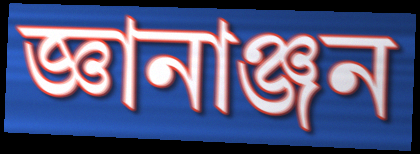
জ্ঞানাঞ্জন